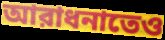
আরাধনাতেও